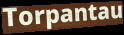
Torpantau